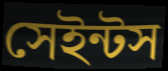
সেইন্টস